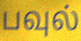
பவுல்